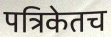
पत्रिकेतच